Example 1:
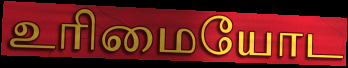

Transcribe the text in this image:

உரிமையோட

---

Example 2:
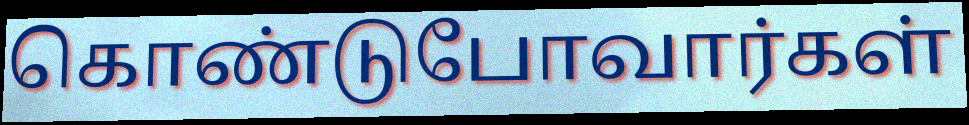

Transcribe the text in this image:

கொண்டுபோவார்கள்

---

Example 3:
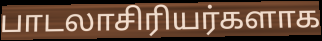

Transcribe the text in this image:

பாடலாசிரியர்களாக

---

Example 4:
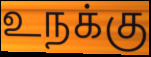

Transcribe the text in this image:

உநக்கு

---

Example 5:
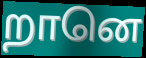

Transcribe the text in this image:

றானெ